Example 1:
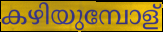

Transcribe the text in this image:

കഴിയുമ്പോള്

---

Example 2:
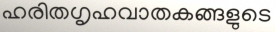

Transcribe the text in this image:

ഹരിതഗൃഹവാതകങ്ങളുടെ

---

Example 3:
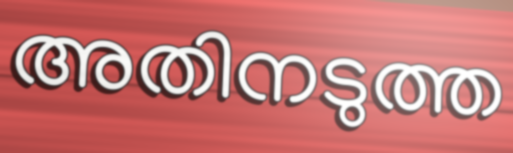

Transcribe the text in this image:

അതിനടുത്ത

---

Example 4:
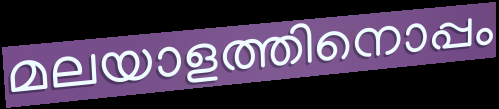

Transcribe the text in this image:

മലയാളത്തിനൊപ്പം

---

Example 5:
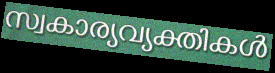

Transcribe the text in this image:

സ്വകാര്യവ്യക്തികൾ